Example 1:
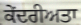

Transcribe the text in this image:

ਕੇਂਦਰੀਅਤਾ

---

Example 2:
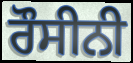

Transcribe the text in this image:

ਰੌਸੀਨੀ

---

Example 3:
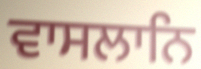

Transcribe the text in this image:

ਵਾਸਲਾਨਿ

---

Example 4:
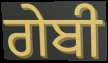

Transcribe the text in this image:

ਗੇਬੀ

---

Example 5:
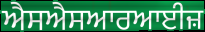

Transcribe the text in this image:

ਐਸਐਸਆਰਆਈਜ਼